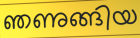
ഞണുങ്ങിയ